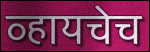
व्हायचेच